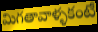
మిగతావాళ్ళకంటే